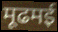
मूढमई